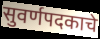
सुवर्णपदकाचे